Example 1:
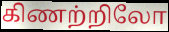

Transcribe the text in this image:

கிணற்றிலோ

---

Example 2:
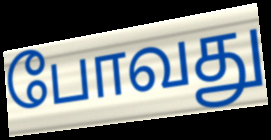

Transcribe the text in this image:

போவது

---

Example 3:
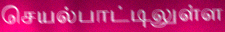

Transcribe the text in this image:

செயல்பாட்டிலுள்ள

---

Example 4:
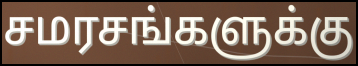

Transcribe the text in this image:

சமரசங்களுக்கு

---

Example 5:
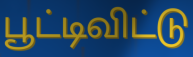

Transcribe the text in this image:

பூட்டிவிட்டு